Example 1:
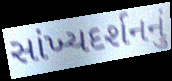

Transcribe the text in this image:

સાંખ્યદર્શનનું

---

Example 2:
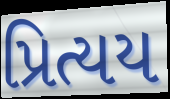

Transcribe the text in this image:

પ્રિત્યય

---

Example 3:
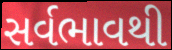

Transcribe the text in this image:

સર્વભાવથી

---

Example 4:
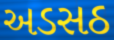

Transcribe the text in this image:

અડસઠ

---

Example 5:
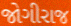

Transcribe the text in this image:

જોગીરાજ